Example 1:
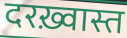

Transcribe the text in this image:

दरख़्वास्त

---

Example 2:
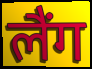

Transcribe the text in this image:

लैंग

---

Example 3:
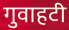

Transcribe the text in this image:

गुवाहटी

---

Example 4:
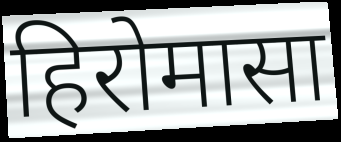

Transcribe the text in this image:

हिरोमासा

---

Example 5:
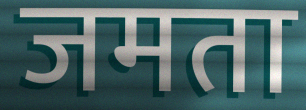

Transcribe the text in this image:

जमता